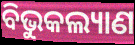
ବିଭୁକଲ୍ୟାଣ